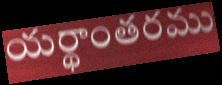
యర్థాంతరము